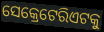
ସେକ୍ରେଟେରିଏଟକୁ